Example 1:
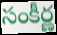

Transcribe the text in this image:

సంకీర్ణ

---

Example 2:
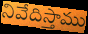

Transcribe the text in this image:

నివేదిస్తాము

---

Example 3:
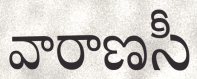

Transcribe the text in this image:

వారాణసీ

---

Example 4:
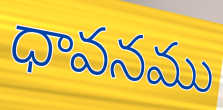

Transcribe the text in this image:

ధావనము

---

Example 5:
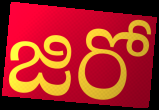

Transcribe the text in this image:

జిరో